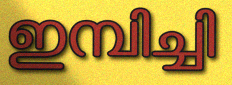
ഇമ്പിച്ചി